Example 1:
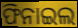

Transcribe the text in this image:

ଫିନାଇଲ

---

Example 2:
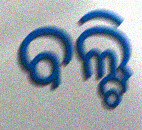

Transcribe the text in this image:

ବଲ୍ଟି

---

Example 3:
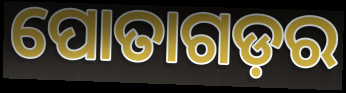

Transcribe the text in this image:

ପୋତାଗଡ଼ର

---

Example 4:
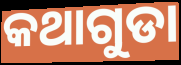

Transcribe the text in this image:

କଥାଗୁଡା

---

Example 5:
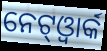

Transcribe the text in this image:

ନେଟ୍ଓ୍ବାର୍କ